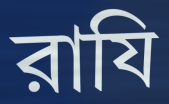
রাযি